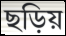
ছড়িয়